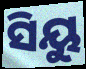
ସିୟୁ